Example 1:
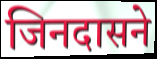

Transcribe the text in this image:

जिनदासने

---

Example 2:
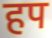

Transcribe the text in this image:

हप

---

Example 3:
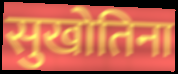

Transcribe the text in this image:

सुखोतिना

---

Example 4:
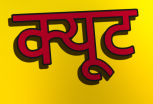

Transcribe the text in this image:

क्यूट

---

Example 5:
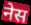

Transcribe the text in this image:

नेस